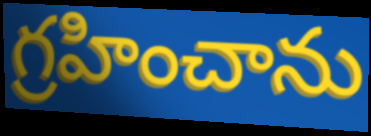
గ్రహించాను